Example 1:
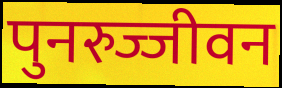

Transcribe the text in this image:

पुनरुज्‍जीवन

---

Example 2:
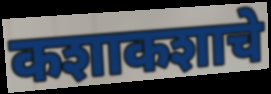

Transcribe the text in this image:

कशाकशाचे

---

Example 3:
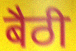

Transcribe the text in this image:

बैठी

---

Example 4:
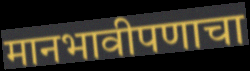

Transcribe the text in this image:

मानभावीपणाचा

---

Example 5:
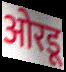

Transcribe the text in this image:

ओरडू